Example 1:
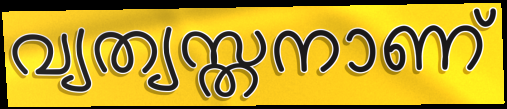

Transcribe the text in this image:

വ്യത്യസ്തനാണ്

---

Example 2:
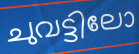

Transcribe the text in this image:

ചുവട്ടിലോ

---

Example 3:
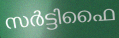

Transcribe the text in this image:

സർട്ടിഫൈ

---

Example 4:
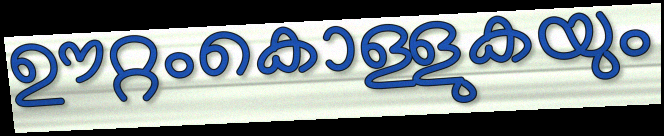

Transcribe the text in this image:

ഊറ്റംകൊള്ളുകയും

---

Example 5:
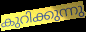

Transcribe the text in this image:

കുറിക്കുന്നു